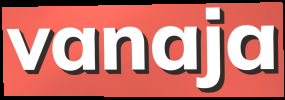
vanaja